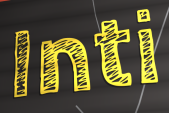
Inti